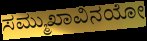
ಸಮ್ಮುಖಾವಿನಯೋ